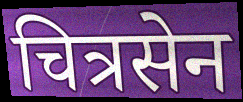
चित्रसेन